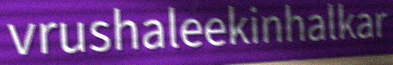
vrushaleekinhalkar